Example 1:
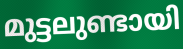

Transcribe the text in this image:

മുട്ടലുണ്ടായി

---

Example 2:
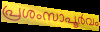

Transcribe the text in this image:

പ്രശംസാപൂർവം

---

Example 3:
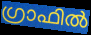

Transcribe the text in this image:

ഗ്രാഫിൽ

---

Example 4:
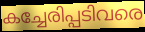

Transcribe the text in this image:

കച്ചേരിപ്പടിവരെ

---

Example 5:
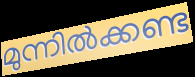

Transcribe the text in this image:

മുന്നിൽക്കണ്ട